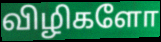
விழிகளோ